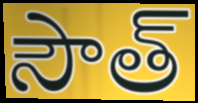
సౌత్